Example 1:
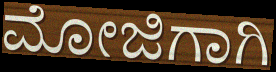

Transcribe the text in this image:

ಮೋಜಿಗಾಗಿ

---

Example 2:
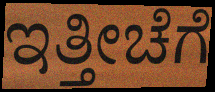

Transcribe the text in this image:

ಇತ್ತೀಚೆಗೆ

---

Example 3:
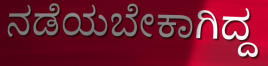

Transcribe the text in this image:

ನಡೆಯಬೇಕಾಗಿದ್ದ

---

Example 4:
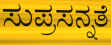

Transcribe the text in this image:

ಸುಪ್ರಸನ್ನತೆ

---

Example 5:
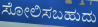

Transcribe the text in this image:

ಸೋಲಿಸಬಹುದು